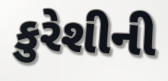
કુરેશીની